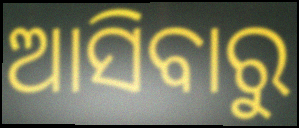
ଆସିବାରୁ